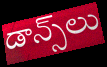
డాన్స్‌లు